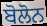
ਬੋਲੋਨ